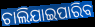
ଚାଲିଯାଇପାରିବ